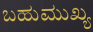
ಬಹುಮುಖ್ಯ